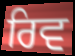
ਰਿਵ